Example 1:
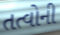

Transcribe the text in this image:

તત્વોની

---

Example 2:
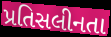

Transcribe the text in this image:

પ્રતિસલીનતા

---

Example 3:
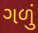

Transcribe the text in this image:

ગળું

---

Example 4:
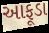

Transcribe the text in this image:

આફૂડા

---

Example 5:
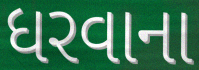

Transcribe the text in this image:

ધરવાના